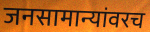
जनसामान्यांवरच